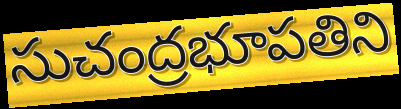
సుచంద్రభూపతిని